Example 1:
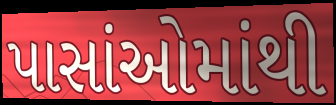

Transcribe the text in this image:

પાસાંઓમાંથી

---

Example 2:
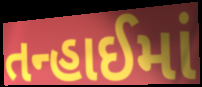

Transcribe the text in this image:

તન્હાઈમાં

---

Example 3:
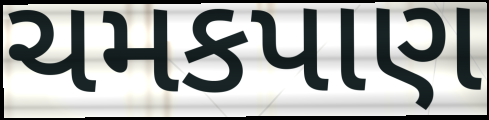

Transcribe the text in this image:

ચમકપાણ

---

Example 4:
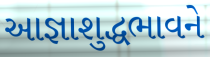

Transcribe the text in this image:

આજ્ઞાશુદ્ધભાવને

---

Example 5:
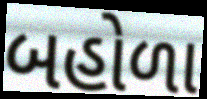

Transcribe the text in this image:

બહોળા